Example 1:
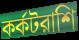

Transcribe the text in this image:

কর্কটরাশি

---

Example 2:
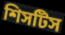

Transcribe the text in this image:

শিসটিস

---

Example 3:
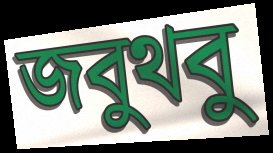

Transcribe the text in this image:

জবুথবু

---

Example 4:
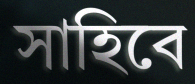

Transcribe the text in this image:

সাহিবে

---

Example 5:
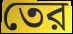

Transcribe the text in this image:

তের